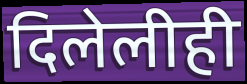
दिलेलीही